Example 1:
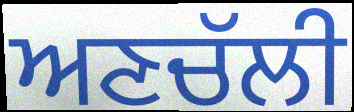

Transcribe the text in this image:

ਅਣਚੱਲੀ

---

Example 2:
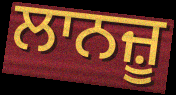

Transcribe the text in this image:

ਲਾਨਜ਼ੂ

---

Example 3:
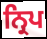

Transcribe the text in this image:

ਨ੍ਰਿਪ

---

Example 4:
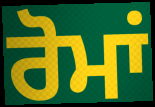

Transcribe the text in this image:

ਰੋਮਾਂ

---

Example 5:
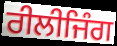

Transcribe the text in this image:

ਰੀਲੀਜਿੰਗ